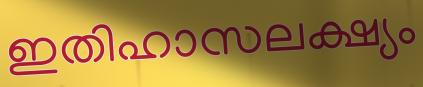
ഇതിഹാസലക്ഷ്യം